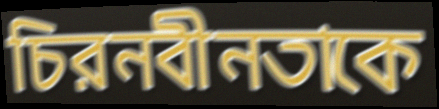
চিরনবীনতাকে